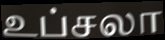
உப்சலா